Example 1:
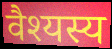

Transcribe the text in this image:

वैश्यस्य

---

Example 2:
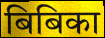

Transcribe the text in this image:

बिबिका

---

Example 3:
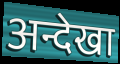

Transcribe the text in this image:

अन्देखा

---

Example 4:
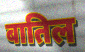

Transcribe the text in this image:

बातिल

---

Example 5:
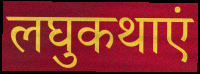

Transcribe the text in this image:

लघुकथाएं